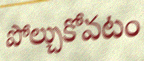
పోల్చుకోవటం